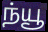
ந்யூ